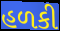
હળકી